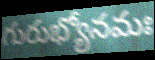
గురుభ్యోనమః